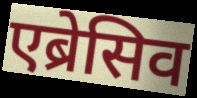
एब्रेसिव